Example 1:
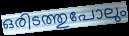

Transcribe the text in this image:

ഒരിടത്തുപോലും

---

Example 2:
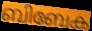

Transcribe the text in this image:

ബിബേക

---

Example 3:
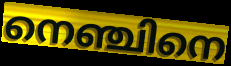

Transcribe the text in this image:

നെഞ്ചിനെ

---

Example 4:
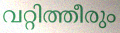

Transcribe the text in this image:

വറ്റിത്തീരും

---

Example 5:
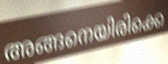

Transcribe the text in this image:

അങ്ങനെയിരിക്കെ